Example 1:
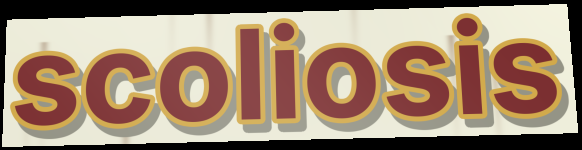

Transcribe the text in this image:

scoliosis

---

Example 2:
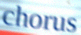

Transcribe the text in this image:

chorus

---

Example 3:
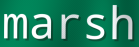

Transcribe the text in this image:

marsh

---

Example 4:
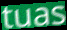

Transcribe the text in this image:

tuas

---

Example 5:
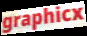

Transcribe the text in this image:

graphicx